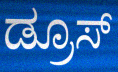
ಡ್ರೂಸ್